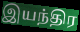
இயந்திர